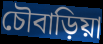
চৌবাড়িয়া